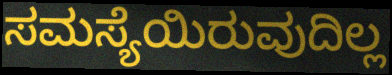
ಸಮಸ್ಯೆಯಿರುವುದಿಲ್ಲ